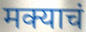
मक्याचं